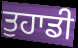
ਤੁਹਾਡੀ